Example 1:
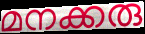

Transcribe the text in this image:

മനക്കരു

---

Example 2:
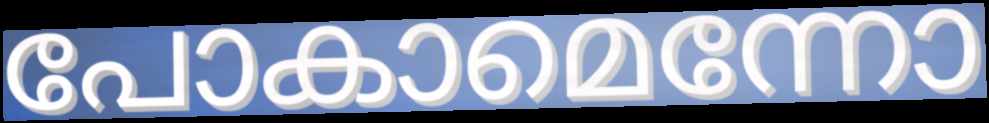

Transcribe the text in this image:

പോകാമെന്നോ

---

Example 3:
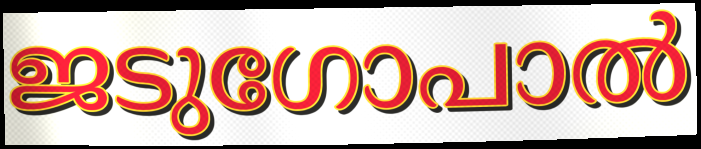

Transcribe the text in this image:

ജടുഗോപാൽ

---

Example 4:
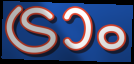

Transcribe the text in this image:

ട്രാം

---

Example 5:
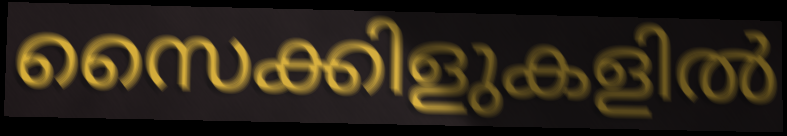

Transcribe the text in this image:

സൈക്കിളുകളിൽ